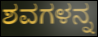
ಶವಗಳನ್ನ